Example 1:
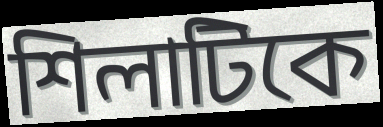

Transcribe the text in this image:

শিলাটিকে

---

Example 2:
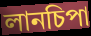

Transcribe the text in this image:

লানচিপা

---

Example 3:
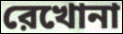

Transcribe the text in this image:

রেখোনা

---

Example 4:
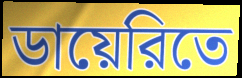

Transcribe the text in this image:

ডায়েরিতে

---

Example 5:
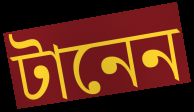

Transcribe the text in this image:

টানেন